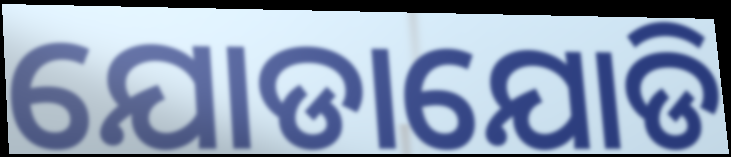
ଯୋଡାଯୋଡି